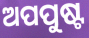
ଅପପୁଷ୍ଟ